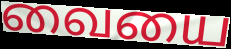
வையை